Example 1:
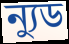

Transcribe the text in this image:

ন্যুড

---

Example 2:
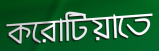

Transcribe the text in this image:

করোটিয়াতে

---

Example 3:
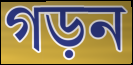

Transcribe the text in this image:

গড়ন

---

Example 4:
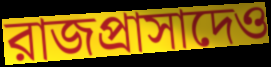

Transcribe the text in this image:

রাজপ্রাসাদেও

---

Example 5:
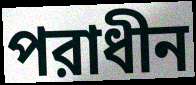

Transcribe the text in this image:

পরাধীন